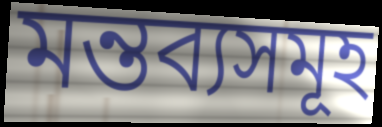
মন্তব্যসমূহ